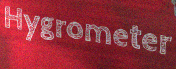
Hygrometer